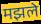
मझले